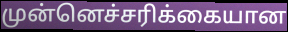
முன்னெச்சரிக்கையான